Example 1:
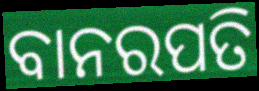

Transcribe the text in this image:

ବାନରପତି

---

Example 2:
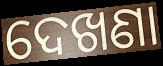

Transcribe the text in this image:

ଦେଖଣା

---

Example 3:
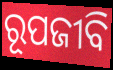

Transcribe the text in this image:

ରୂପଜୀବି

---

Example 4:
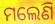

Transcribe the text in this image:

ମଲେଣି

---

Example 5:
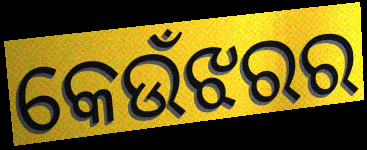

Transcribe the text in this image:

କେଉଁଝରର